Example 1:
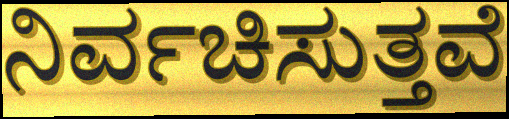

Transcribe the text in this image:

ನಿರ್ವಚಿಸುತ್ತವೆ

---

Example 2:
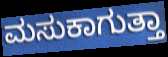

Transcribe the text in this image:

ಮಸುಕಾಗುತ್ತಾ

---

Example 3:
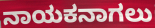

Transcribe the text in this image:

ನಾಯಕನಾಗಲು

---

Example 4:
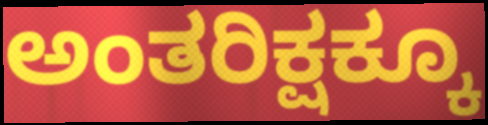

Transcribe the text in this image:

ಅಂತರಿಕ್ಷಕ್ಕೂ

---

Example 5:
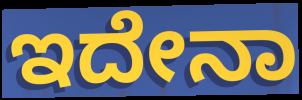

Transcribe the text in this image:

ಇದೇನಾ